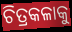
ଚିତ୍ରକଳାକୁ